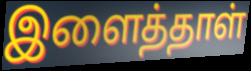
இளைத்தாள்